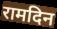
रामदिन